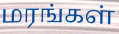
மரங்கள்